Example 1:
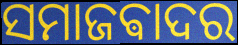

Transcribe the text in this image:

ସମାଜଵାଦର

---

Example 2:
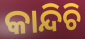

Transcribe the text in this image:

କାନ୍ଦିଚି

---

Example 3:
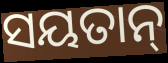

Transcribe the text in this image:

ସୟତାନ୍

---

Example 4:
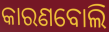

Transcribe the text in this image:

କାରଣବୋଲି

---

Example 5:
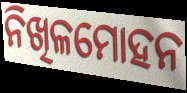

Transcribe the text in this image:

ନିଖିଳମୋହନ